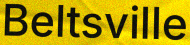
Beltsville